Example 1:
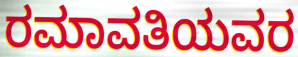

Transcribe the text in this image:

ರಮಾವತಿಯವರ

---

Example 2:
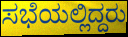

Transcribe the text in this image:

ಸಭೆಯಲ್ಲಿದ್ದರು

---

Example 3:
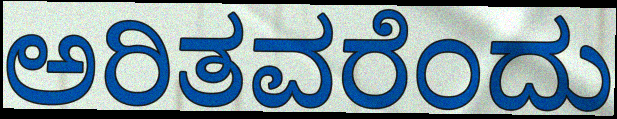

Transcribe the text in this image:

ಅರಿತವರೆಂದು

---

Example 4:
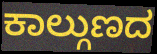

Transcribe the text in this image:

ಕಾಲ್ಗುಣದ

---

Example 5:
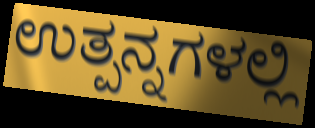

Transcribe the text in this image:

ಉತ್ಪನ್ನಗಳಲ್ಲಿ